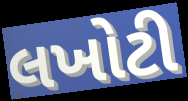
લખોટી